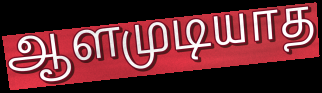
ஆளமுடியாத